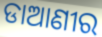
ଡାଆଣୀର